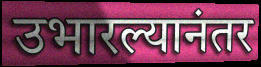
उभारल्यानंतर